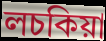
লচকিয়া